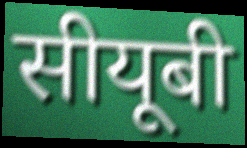
सीयूबी